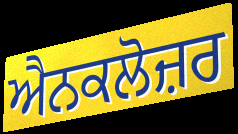
ਐਨਕਲੋਜ਼ਰ